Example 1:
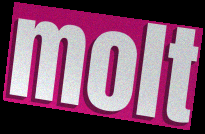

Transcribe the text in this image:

molt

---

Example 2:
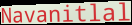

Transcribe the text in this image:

Navanitlal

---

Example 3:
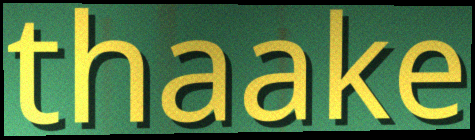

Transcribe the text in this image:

thaake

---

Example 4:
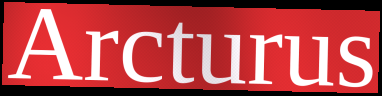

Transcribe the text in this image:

Arcturus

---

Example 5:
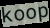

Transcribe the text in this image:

koop